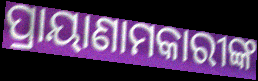
ପ୍ରାୟାଣାମକାରୀଙ୍କ